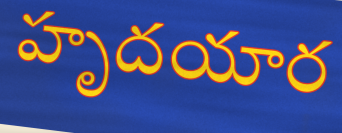
హృదయార